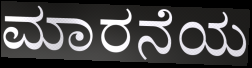
ಮಾರನೆಯ